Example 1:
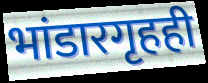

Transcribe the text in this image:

भांडारगृहही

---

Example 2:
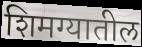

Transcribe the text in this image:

शिमग्यातील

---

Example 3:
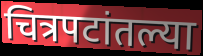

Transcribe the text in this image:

चित्रपटांतल्या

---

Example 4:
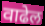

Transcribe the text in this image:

वाढेल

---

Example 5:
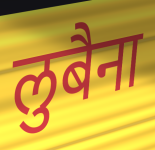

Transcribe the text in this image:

लुबैना